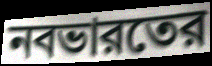
নবভারতের